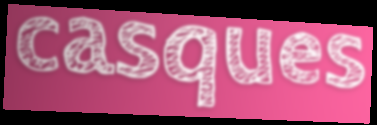
casques